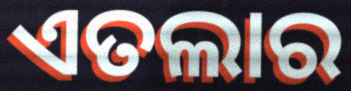
ଏତଲାର